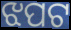
ଝପଟ